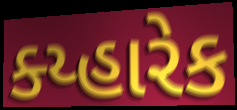
ક્ય્હારેક